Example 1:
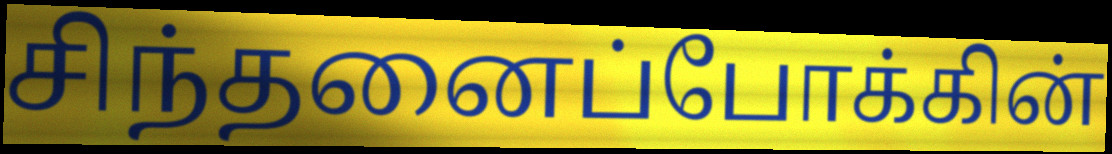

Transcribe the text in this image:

சிந்தனைப்போக்கின்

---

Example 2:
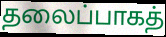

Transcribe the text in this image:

தலைப்பாகத்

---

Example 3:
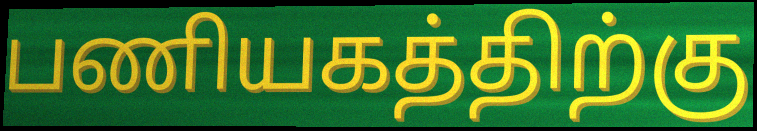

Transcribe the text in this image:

பணியகத்திற்கு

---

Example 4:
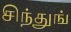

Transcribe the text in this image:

சிந்துங்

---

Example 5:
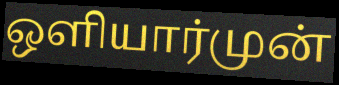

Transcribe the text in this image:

ஒளியார்முன்